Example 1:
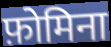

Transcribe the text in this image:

फ़ोमिना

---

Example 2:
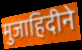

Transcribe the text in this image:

मुजाहिदीने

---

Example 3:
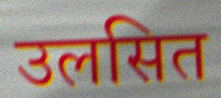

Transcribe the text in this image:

उलसित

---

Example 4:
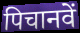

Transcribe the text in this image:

पिचानवें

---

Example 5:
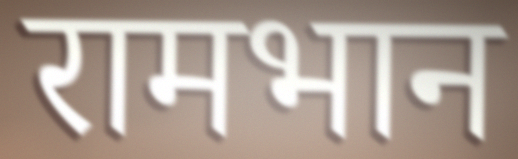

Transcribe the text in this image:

रामभान